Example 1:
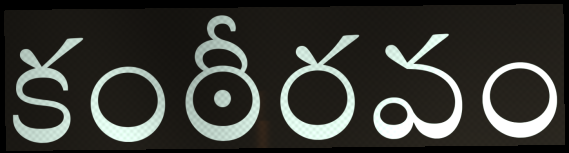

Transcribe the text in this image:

కంఠీరవం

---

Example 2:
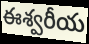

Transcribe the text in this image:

ఈశ్వరీయ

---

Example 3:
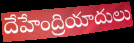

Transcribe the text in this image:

దేహేంద్రియాదులు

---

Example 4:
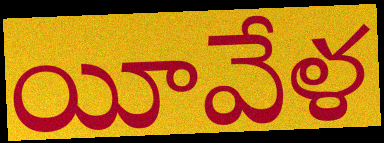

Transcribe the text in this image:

యీవేళ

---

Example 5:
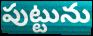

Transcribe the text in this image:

పుట్టును